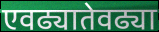
एवढ्यातेवढ्या